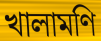
খালামণি